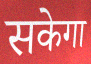
सकेगा